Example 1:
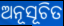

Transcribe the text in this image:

ଅନୂସୂଚିତ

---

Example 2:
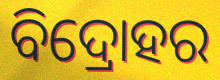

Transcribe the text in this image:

ବିଦ୍ରୋହର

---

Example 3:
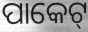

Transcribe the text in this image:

ପାକେଟ୍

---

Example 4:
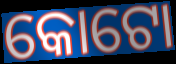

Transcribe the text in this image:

କୋଟୋ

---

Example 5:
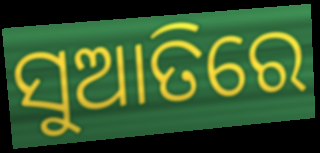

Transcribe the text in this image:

ସୁଆତିରେ